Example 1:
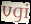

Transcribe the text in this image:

ugi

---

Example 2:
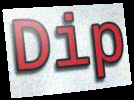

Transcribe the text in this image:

Dip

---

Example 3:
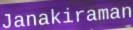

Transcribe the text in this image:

Janakiraman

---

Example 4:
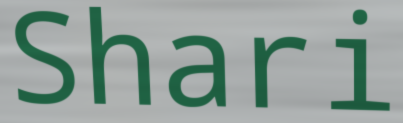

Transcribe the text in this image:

Shari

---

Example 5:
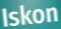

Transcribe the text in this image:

Iskon